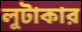
লুটাকার